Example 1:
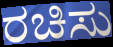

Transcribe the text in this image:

ರಚಿಸು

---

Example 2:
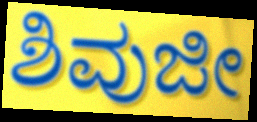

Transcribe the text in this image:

ಶಿವುಜೀ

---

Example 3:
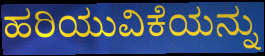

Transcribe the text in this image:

ಹರಿಯುವಿಕೆಯನ್ನು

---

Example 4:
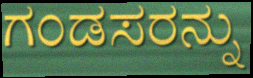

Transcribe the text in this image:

ಗಂಡಸರನ್ನು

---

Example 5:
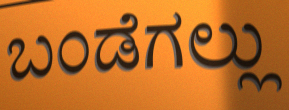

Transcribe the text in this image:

ಬಂಡೆಗಲ್ಲು